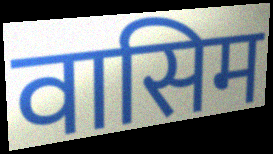
वासिम